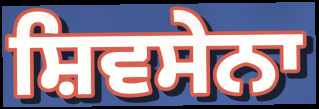
ਸ਼ਿਵਸੇਨਾ